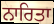
ਨਾਰਿਤਾ